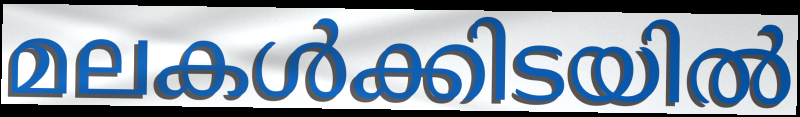
മലകൾക്കിടയിൽ